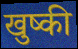
खुष्की